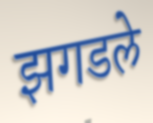
झगडले